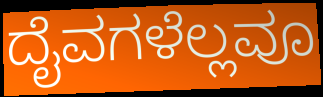
ದೈವಗಳೆಲ್ಲವೂ